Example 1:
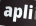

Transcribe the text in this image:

apli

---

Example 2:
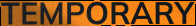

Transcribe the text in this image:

TEMPORARY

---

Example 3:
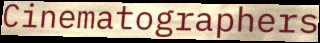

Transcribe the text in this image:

Cinematographers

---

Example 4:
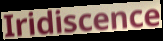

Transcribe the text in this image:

Iridiscence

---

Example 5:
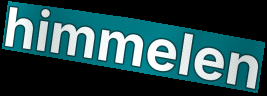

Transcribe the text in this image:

himmelen